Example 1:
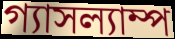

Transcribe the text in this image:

গ্যাসল্যাম্প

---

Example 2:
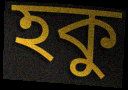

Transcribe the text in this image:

হকু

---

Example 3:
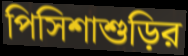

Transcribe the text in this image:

পিসিশাশুড়ির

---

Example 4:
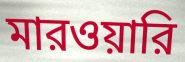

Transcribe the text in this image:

মারওয়ারি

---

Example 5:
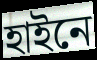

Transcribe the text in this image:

হাইনে